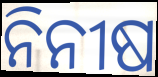
ନିନୀଷ